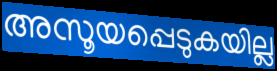
അസൂയപ്പെടുകയില്ല